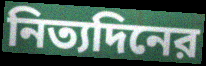
নিত্যদিনের